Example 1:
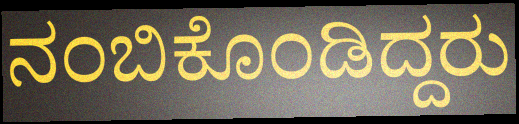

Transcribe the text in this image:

ನಂಬಿಕೊಂಡಿದ್ದರು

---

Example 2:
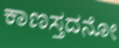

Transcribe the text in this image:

ಕಾಣಸ್ತದನೋ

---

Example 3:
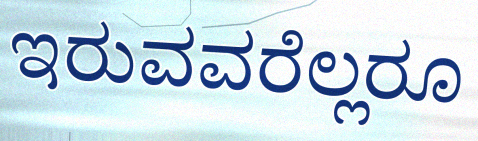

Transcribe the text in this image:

ಇರುವವರೆಲ್ಲರೂ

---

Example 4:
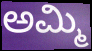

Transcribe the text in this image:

ಅಮ್ಮಿ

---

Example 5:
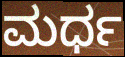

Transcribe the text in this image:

ಮರ್ಧ